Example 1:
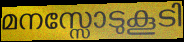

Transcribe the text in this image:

മനസ്സോടുകൂടി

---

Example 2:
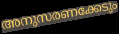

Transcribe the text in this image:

അനുസരണക്കേടും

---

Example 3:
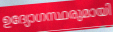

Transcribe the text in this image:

ഉദ്യോഗസ്ഥരുമായി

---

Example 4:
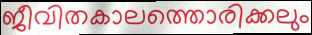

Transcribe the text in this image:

ജീവിതകാലത്തൊരിക്കലും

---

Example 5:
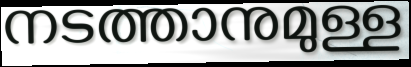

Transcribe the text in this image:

നടത്താനുമുള്ള